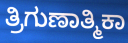
ತ್ರಿಗುಣಾತ್ಮಿಕಾ